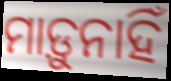
ମାଡ଼ୁନାହିଁ